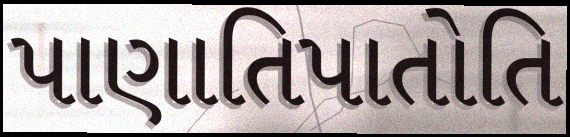
પાણાતિપાતોતિ